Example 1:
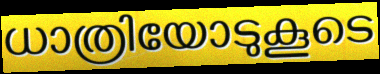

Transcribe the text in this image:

ധാത്രിയോടുകൂടെ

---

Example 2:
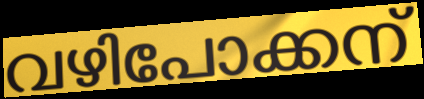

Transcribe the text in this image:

വഴിപോക്കന്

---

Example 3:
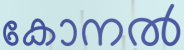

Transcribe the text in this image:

കോനൽ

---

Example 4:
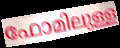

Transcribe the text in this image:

ഫോമിലുള്ള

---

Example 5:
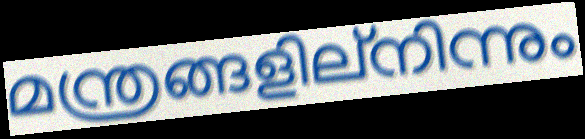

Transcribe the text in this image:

മന്ത്രങ്ങളില്നിന്നും